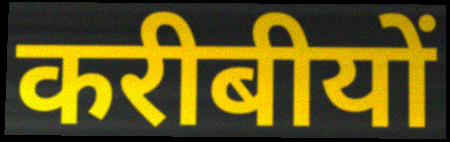
करीबीयों